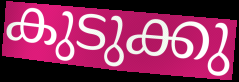
കുടുക്കു